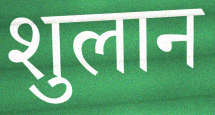
शुलान